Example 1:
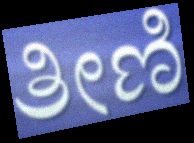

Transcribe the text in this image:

ತೀಣಿ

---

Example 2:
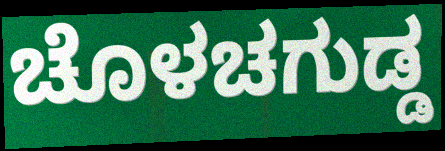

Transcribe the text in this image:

ಚೊಳಚಗುಡ್ಡ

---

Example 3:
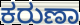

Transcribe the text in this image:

ಕರುಣಾ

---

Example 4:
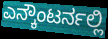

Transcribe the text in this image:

ಎನ್ಕೌಂಟರ್ನಲ್ಲಿ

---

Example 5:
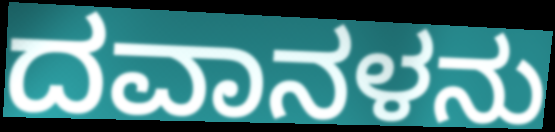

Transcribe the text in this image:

ದವಾನಳನು